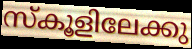
സ്കൂളിലേക്കു